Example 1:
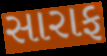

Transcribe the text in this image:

સારાફ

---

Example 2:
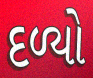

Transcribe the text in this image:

દળ્યો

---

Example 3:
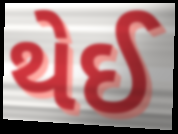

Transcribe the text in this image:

થેઈ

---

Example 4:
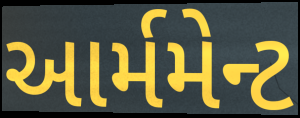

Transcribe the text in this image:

આર્મમેન્ટ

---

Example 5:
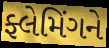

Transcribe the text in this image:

ફ્લેમિંગને